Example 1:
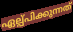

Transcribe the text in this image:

ഏല്പ്പിക്കുന്നത്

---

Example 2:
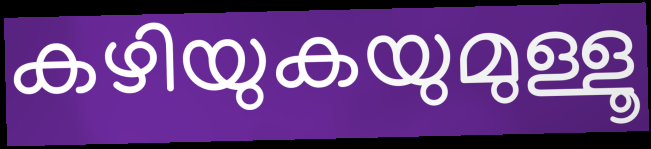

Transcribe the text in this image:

കഴിയുകയുമുള്ളൂ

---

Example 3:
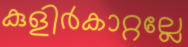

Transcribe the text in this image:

കുളിർകാറ്റല്ലേ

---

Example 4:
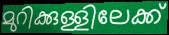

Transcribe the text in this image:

മുറിക്കുള്ളിലേക്ക്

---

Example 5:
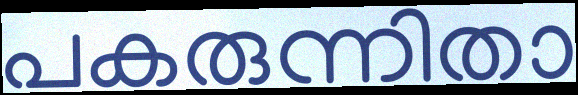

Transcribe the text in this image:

പകരുന്നിതാ